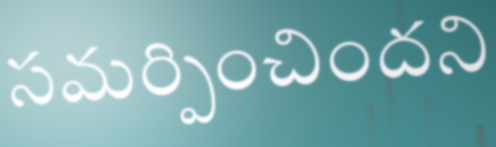
సమర్పించిందని